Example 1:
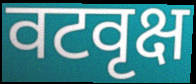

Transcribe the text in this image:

वटवृक्ष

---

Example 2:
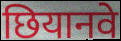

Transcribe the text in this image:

छियानवे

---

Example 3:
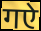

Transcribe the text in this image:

गऐ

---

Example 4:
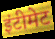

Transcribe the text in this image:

इंटीमेट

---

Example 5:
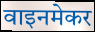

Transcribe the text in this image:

वाइनमेकर